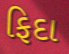
ફિદા